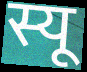
स्यू